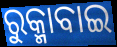
ରୁକ୍ମାବାଇ